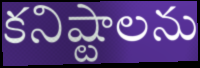
కనిష్టాలను